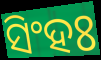
ସିଂହଃ